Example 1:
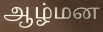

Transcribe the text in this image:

ஆழ்மன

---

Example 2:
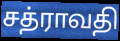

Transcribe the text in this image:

சத்ராவதி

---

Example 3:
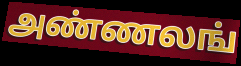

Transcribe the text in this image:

அண்ணலங்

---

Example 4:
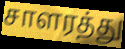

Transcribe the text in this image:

சாளரத்து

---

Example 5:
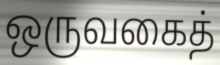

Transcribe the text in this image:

ஒருவகைத்